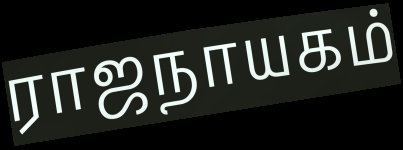
ராஜநாயகம்